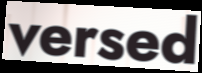
versed